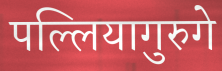
पल्लियागुरुगे